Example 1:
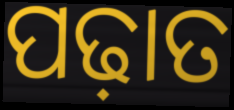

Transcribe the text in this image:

ପଢ଼ାତ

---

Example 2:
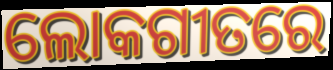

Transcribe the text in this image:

ଲୋକଗୀତରେ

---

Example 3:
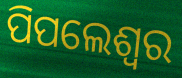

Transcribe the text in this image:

ପିପଲେଶ୍ୱର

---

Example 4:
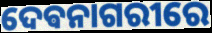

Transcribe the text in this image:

ଦେଵନାଗରୀରେ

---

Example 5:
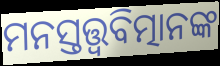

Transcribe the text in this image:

ମନସ୍ତତ୍ତ୍ବବିତ୍ମାନଙ୍କ